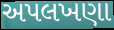
અપલખણા